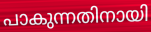
പാകുന്നതിനായി